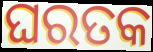
ଘରତକ